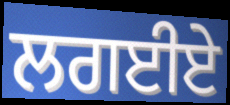
ਲਗਈਏ